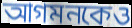
আগমনকেও